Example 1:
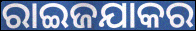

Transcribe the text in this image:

ରାଇଜଯାକର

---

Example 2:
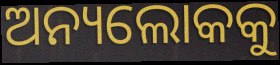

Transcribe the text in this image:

ଅନ୍ୟଲୋକକୁ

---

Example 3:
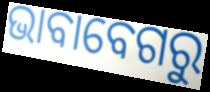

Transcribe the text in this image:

ଭାବାବେଗରୁ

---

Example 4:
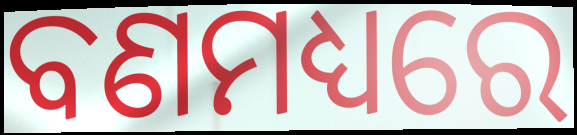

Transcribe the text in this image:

ବଣମଧ୍ଯରେ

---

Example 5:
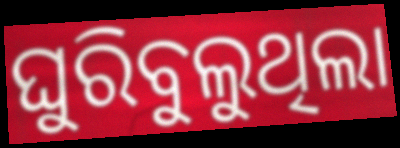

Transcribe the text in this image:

ଘୁରିବୁଲୁଥିଲା